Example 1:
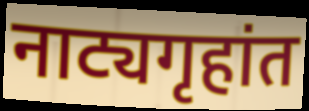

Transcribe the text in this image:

नाट्यगृहांत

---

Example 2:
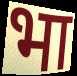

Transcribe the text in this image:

भा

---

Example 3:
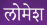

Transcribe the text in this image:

लोमेश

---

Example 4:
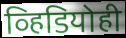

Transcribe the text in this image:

व्हिडियोही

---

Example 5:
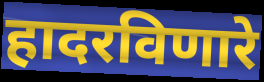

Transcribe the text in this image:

हादरविणारे